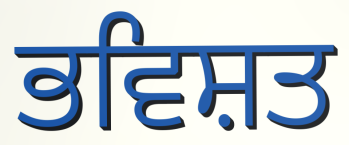
ਭਵਿਸ਼ਤ